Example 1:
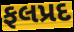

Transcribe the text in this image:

ફલપ્રદ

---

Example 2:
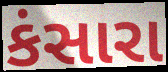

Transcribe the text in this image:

કંસારા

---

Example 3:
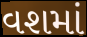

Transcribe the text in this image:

વશમાં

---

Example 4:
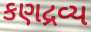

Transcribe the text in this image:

કણદ્રવ્ય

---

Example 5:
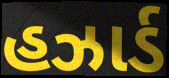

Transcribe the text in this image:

હઝાર્ડ